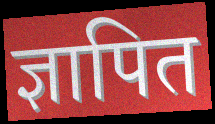
ज्ञापित